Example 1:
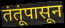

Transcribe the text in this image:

तंतूंपासून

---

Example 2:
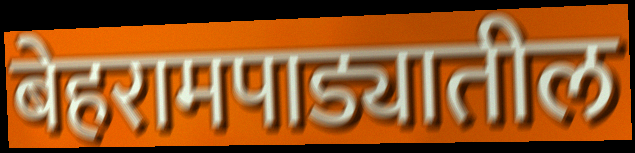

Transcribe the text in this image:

बेहरामपाड्यातील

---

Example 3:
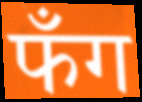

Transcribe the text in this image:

फँग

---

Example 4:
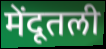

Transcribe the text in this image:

मेंदूतली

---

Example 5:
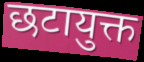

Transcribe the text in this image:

छटायुक्त